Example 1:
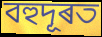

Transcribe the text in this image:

বহুদূৰত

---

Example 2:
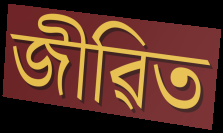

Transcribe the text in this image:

জীৱিত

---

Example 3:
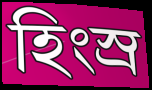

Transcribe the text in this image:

হিংস্ৰ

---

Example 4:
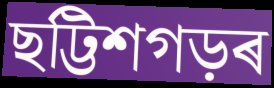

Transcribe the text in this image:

ছট্টিশগড়ৰ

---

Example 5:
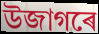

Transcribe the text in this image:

উজাগৰে